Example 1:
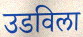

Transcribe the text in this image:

उडविला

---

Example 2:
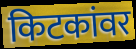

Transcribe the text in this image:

किटकांवर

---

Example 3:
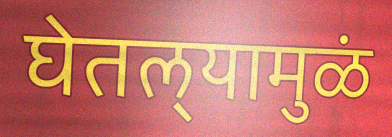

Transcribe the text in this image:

घेतल्यामुळं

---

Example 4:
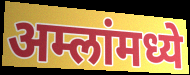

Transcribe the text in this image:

अम्लांमध्ये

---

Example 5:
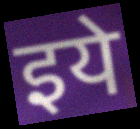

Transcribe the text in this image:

इये